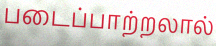
படைப்பாற்றலால்